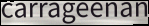
carrageenan